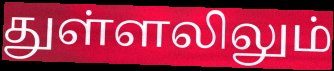
துள்ளலிலும்